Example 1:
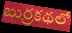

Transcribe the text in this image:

బుర్రకథలో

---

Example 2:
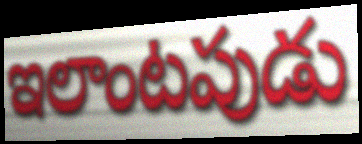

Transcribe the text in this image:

ఇలాంటపుడు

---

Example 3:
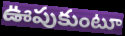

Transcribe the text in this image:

ఊపుకుంటూ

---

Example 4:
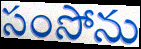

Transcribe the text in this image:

సంసోను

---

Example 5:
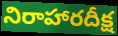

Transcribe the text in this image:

నిరాహారదీక్ష